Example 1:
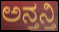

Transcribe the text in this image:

ಅನ್ತನ್ತಿ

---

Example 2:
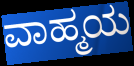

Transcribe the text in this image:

ವಾಹ್ಮಯ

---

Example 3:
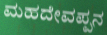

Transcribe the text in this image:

ಮಹದೇವಪ್ಪನ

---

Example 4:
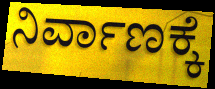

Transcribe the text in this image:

ನಿರ್ವಾಣಕ್ಕೆ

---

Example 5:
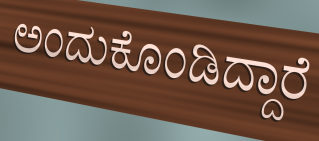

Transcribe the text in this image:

ಅಂದುಕೊಂಡಿದ್ದಾರೆ